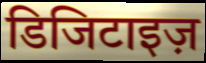
डिजिटाइज़